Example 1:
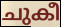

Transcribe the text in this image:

ചുകീ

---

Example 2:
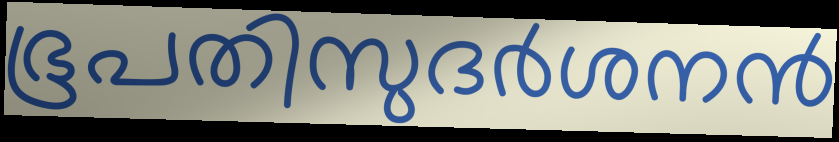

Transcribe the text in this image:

ഭൂപതിസുദർശനൻ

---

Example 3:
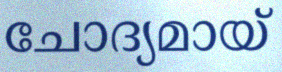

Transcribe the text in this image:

ചോദ്യമായ്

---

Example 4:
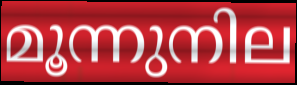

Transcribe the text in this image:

മൂന്നുനില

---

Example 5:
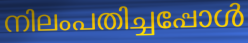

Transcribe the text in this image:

നിലംപതിച്ചപ്പോൾ